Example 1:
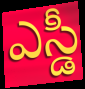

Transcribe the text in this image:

ఎస్డీ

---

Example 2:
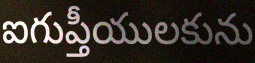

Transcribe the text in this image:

ఐగుప్తీయులకును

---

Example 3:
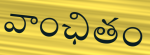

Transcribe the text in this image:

వాంఛితం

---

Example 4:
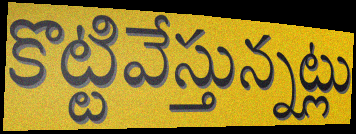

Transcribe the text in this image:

కొట్టివేస్తున్నట్లు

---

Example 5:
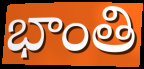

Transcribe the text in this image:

భాంతి